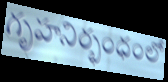
గృహనిర్భంధంలో